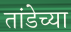
तांडेच्या